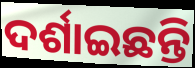
ଦର୍ଶାଇଛନ୍ତି